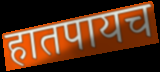
हातपायच